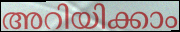
അറിയിക്കാം